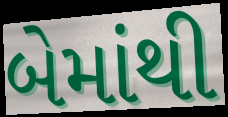
બેમાંથી